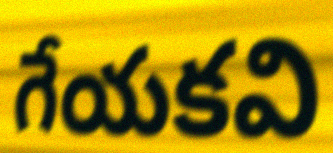
గేయకవి